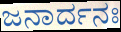
ಜನಾರ್ದನಃ